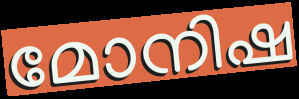
മോനിഷ